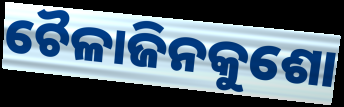
ଚୈଳାଜିନକୁଶୋ